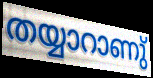
തയ്യാറാണു്